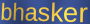
bhasker